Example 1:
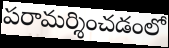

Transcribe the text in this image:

పరామర్శించడంలో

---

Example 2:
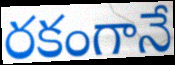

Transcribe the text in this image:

రకంగానే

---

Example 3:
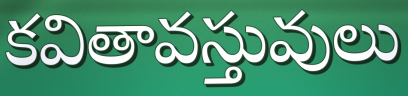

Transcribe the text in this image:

కవితావస్తువులు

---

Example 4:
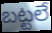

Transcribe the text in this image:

బట్టలే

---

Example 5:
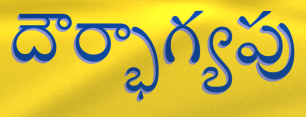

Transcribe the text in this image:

దౌర్భాగ్యపు